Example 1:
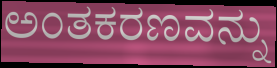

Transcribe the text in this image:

ಅಂತಕರಣವನ್ನು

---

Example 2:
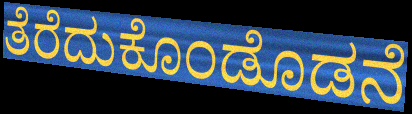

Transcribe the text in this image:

ತೆರೆದುಕೊಂಡೊಡನೆ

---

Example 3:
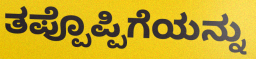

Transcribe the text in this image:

ತಪ್ಪೊಪ್ಪಿಗೆಯನ್ನು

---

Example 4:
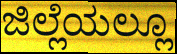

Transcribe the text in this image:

ಜಿಲ್ಲೆಯಲ್ಲೂ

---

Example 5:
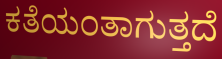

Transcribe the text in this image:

ಕತೆಯಂತಾಗುತ್ತದೆ